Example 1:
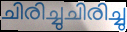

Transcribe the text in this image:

ചിരിച്ചുചിരിച്ചു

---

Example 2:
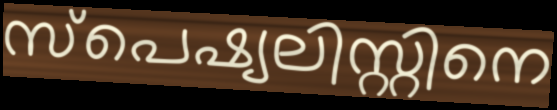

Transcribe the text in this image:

സ്പെഷ്യലിസ്റ്റിനെ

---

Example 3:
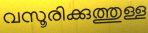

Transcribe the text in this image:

വസൂരിക്കുത്തുള്ള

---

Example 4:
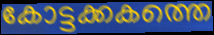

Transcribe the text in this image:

കോട്ടക്കകത്തെ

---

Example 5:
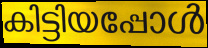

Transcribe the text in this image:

കിട്ടിയപ്പോൾ